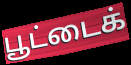
பூட்டைக்